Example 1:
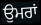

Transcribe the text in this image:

ਉਮਰਾਂ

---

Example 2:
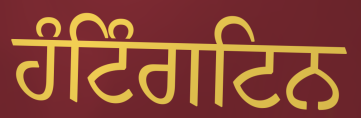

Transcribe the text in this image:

ਹੰਟਿੰਗਟਿਨ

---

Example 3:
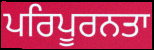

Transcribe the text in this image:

ਪਰਿਪੂਰਨਤਾ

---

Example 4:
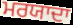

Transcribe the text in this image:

ਮਰਯਾਦਾ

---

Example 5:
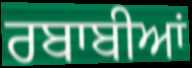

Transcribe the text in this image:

ਰਬਾਬੀਆਂ